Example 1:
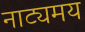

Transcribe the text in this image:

नाट्यमय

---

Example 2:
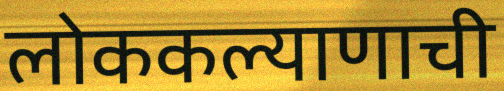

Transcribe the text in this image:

लोककल्याणाची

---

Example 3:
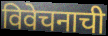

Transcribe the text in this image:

विवेचनाची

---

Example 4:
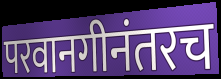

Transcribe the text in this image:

परवानगीनंतरच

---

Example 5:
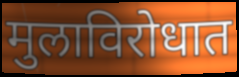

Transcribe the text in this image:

मुलाविरोधात